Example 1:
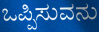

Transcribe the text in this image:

ಒಪ್ಪಿಸುವನು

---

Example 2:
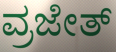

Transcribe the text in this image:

ವ್ರಜೇತ್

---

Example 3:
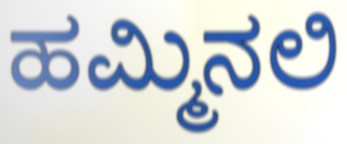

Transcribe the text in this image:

ಹಮ್ಮಿನಲಿ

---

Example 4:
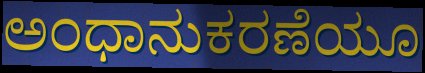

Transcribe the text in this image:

ಅಂಧಾನುಕರಣೆಯೂ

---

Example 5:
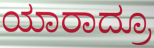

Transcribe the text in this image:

ಯಾರಾದ್ರೂ